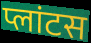
प्लांटस